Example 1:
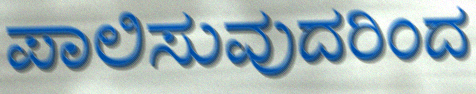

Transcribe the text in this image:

ಪಾಲಿಸುವುದರಿಂದ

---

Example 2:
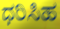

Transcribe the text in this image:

ಧರಿಸಿಹ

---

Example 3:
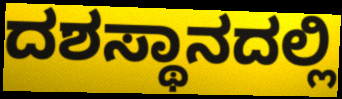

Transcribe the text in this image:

ದಶಸ್ಥಾನದಲ್ಲಿ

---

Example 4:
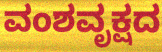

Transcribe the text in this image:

ವಂಶವೃಕ್ಷದ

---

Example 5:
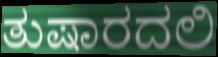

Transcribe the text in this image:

ತುಷಾರದಲಿ